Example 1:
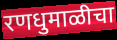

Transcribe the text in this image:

रणधुमाळीचा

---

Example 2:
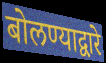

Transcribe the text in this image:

बोलण्याद्वारे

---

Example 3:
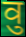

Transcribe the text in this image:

वु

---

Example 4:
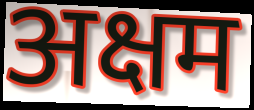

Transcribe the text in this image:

अक्षम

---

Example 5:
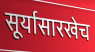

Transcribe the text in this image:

सूर्यासारखेच